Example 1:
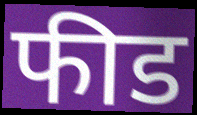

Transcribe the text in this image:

फीड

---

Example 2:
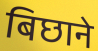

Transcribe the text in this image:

बिछाने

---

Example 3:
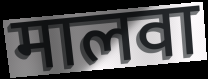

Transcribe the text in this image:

मालवा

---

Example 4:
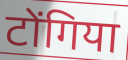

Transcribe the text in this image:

टोंगिया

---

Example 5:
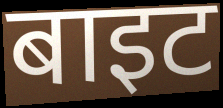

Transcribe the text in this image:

बाइट